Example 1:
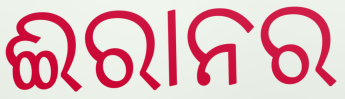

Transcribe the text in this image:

ଈରାନର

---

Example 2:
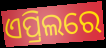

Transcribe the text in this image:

ଏପ୍ରିଲରେ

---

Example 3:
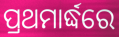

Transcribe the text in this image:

ପ୍ରଥମାର୍ଦ୍ଧରେ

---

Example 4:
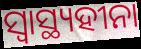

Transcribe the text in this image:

ସ୍ଵାସ୍ଥ୍ୟହୀନା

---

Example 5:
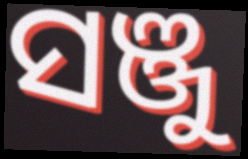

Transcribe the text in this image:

ସଞ୍ଜୁ